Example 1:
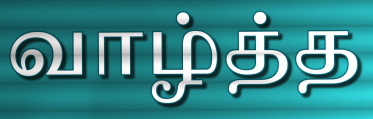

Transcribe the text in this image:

வாழ்த்த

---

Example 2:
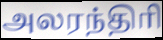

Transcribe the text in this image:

அலரந்திரி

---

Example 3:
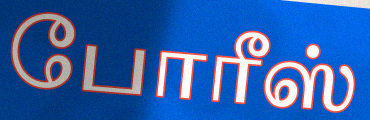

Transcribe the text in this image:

போரீஸ்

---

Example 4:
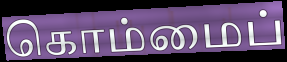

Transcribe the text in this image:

கொம்மைப்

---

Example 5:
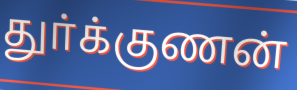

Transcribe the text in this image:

துர்க்குணன்